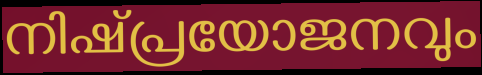
നിഷ്പ്രയോജനവും